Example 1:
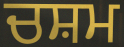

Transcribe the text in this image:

ਚਸ਼ਮ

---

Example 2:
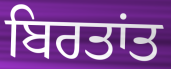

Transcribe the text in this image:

ਬਿਰਤਾਂਤ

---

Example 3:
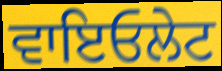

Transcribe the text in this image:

ਵਾਇਓਲੇਟ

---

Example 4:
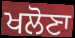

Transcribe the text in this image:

ਖਲੋਣਾ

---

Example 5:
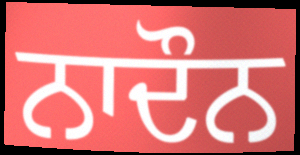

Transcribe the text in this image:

ਨਾਦੌਨ